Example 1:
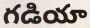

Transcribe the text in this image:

గడియా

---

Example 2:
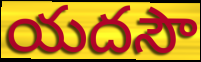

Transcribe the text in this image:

యదసౌ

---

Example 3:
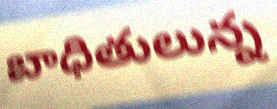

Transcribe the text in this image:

బాధితులున్న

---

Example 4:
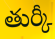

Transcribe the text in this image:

తుర్కీ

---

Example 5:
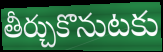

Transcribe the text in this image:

తీర్చుకొనుటకు